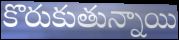
కొరుకుతున్నాయి